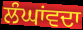
ਲੰਘਾਂਵਦਾ